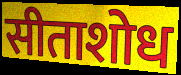
सीताशोध